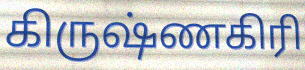
கிருஷ்ணகிரி